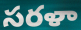
సరళా